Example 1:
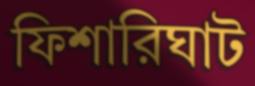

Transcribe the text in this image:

ফিশারিঘাট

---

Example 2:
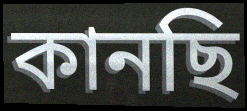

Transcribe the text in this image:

কানছি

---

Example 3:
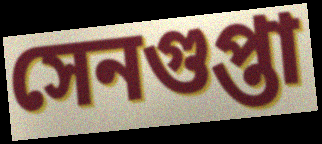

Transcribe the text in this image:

সেনগুপ্তা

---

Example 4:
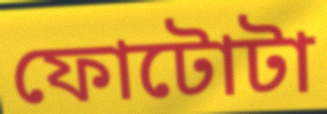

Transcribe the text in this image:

ফোটোটা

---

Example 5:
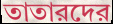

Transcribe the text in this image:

তাতারদের